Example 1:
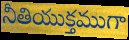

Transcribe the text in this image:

నీతియుక్తముగా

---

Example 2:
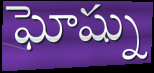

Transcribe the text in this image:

ఘోష్ను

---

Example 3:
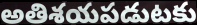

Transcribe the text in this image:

అతిశయపడుటకు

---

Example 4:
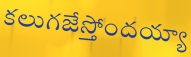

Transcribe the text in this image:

కలుగజేస్తోందయ్యా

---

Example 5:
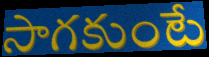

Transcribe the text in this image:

సాగకుంటే